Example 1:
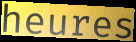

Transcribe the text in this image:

heures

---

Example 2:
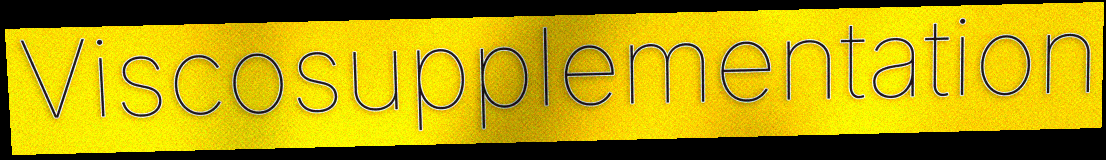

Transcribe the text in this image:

Viscosupplementation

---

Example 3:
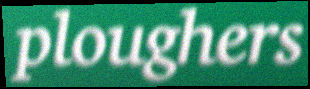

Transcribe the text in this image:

ploughers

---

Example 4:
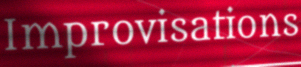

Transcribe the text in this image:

Improvisations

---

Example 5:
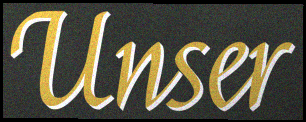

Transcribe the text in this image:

Unser